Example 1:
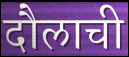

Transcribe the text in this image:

दौलाची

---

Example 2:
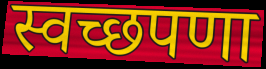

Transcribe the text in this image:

स्वच्छपणा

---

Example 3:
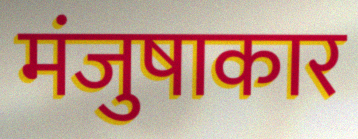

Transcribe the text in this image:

मंजुषाकार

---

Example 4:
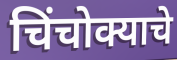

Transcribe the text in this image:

चिंचोक्याचे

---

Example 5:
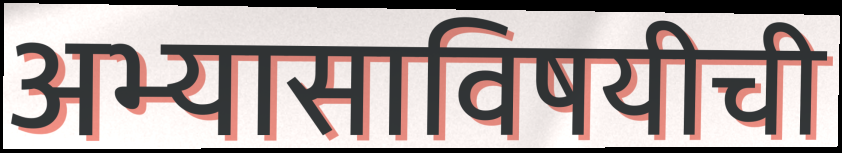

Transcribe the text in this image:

अभ्यासाविषयीची